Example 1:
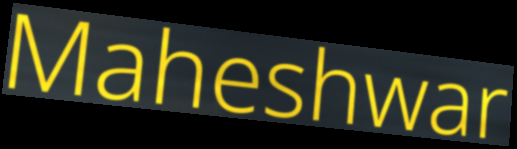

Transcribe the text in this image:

Maheshwar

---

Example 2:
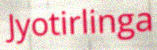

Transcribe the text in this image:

Jyotirlinga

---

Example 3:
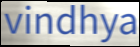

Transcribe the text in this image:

vindhya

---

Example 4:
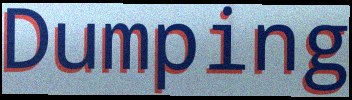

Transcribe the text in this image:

Dumping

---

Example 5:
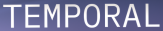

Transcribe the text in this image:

TEMPORAL